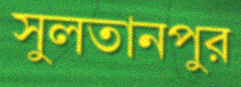
সুলতানপুর